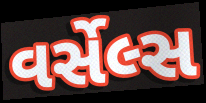
વર્સેલ્સ